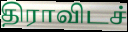
திராவிடச்